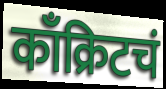
काँक्रिटचं